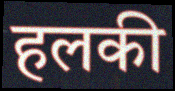
हलकी